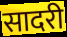
सादरी